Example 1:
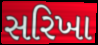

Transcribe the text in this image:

સરિખા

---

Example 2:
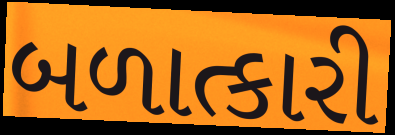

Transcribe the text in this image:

બળાત્કારી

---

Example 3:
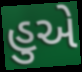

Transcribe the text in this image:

હુએ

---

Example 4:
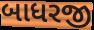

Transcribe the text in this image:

બાધરજી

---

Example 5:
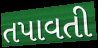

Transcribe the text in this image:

તપાવતી